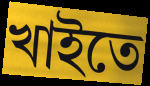
খাইতে